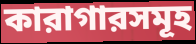
কারাগারসমূহ